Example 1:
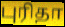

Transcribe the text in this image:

புரிதா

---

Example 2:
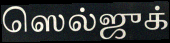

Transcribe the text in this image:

ஸெல்ஜுக்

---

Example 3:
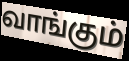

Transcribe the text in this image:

வாங்கும்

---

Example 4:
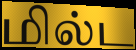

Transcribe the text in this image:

மில்ட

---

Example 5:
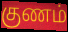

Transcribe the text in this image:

குணம்